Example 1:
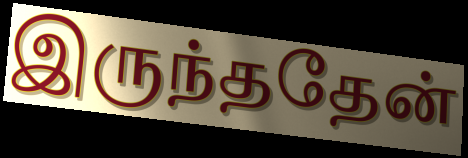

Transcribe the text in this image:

இருந்ததேன்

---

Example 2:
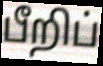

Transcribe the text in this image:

பீறிப்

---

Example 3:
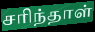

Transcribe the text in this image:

சரிந்தாள்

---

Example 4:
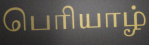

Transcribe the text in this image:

பெரியாழ்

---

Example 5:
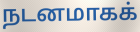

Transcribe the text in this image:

நடனமாகக்